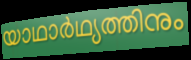
യാഥാർഥ്യത്തിനും